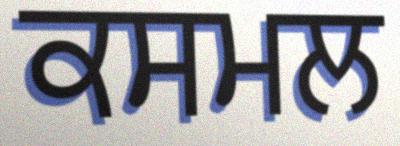
ਕਸਮਲ